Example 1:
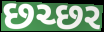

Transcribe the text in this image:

છચ્છર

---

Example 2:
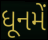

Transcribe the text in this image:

ધૂનમેં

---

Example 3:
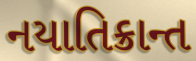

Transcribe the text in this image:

નયાતિક્રાન્ત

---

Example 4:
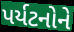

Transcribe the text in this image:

પર્યટનોને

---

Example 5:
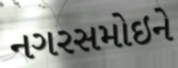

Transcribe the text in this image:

નગરસમોઇને